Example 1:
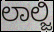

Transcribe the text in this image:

ಲಾಲ್ಜಿ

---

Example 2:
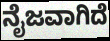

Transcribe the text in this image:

ನೈಜವಾಗಿದೆ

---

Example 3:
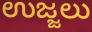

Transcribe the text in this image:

ಉಜ್ಜಲು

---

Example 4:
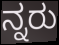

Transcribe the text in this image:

ನ್ನರು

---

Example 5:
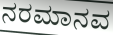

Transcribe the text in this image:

ನರಮಾನವ